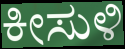
ಕೀಸುಳಿ